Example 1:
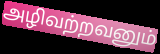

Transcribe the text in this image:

அழிவற்றவனும்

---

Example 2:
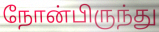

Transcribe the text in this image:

நோன்பிருந்து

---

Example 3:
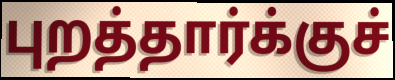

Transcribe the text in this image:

புறத்தார்க்குச்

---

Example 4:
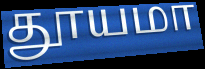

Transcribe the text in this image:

தூயமா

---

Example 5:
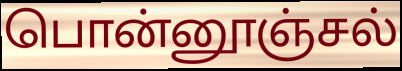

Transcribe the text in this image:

பொன்னூஞ்சல்